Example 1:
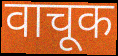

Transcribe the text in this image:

वाचूक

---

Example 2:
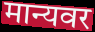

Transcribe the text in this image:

मान्यवर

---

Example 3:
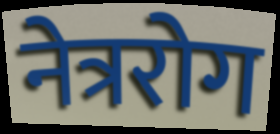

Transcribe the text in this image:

नेत्ररोग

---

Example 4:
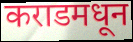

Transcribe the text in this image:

कराडमधून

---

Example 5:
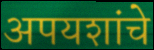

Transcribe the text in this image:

अपयशांचे